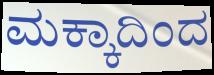
ಮಕ್ಕಾದಿಂದ